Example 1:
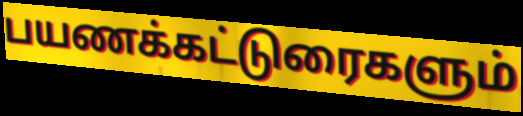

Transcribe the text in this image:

பயணக்கட்டுரைகளும்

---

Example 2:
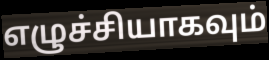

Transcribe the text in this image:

எழுச்சியாகவும்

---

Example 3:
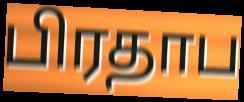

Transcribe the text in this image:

பிரதாப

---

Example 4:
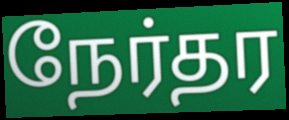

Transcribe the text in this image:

நேர்தர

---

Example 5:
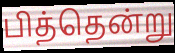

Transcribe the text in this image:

பித்தென்று